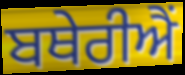
ਬਥੇਰੀਐਂ